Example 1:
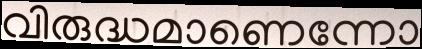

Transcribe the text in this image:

വിരുദ്ധമാണെന്നോ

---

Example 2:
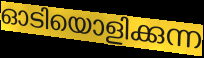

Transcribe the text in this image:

ഓടിയൊളിക്കുന്ന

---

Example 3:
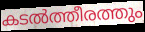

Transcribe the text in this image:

കടൽത്തീരത്തും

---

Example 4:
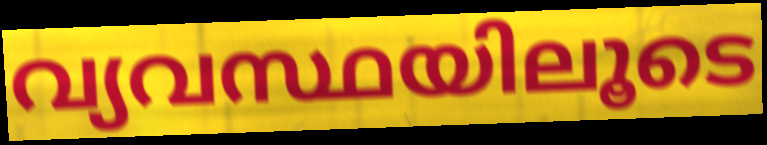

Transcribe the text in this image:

വ്യവസ്ഥയിലൂടെ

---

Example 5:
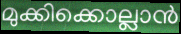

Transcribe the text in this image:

മുക്കിക്കൊല്ലാൻ